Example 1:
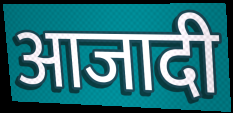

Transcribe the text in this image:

आजादी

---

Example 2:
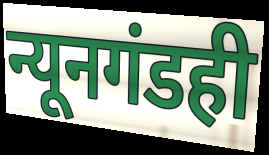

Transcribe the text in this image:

न्यूनगंडही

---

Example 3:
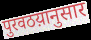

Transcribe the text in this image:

पुरवठय़ानुसार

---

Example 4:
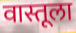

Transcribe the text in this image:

वास्तूला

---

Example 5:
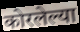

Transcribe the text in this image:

कोरलेल्या